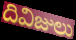
దివిజులు